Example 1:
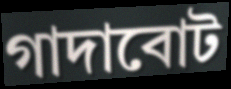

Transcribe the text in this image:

গাদাবোট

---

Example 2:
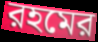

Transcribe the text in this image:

রহমের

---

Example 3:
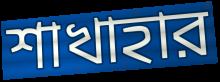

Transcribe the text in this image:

শাখাহার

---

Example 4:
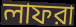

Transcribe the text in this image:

লাফরা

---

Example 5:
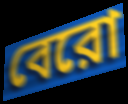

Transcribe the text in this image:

বেরো